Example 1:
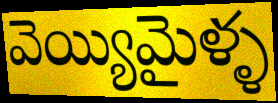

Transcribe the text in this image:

వెయ్యిమైళ్ళ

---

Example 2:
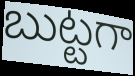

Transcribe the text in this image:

బుట్టగా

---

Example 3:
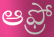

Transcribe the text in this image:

ఆఫ్రో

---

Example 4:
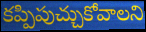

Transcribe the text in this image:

కప్పిపుచ్చుకోవాలని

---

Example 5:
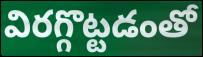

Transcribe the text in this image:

విరగ్గొట్టడంతో